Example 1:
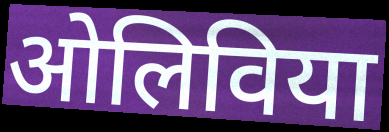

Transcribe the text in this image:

ओलिविया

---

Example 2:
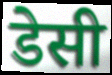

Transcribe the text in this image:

डेसी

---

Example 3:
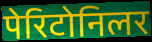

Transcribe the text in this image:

पेरिटोनिलर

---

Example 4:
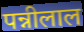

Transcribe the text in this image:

पन्नीलाल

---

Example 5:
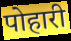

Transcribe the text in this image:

पोहारी